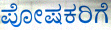
ಪೋಷಕರಿಗೆ